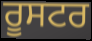
ਰੂਸਟਰ